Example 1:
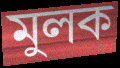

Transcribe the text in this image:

মুলক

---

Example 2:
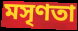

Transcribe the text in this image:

মসৃণতা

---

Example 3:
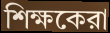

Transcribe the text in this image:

শিক্ষকেরা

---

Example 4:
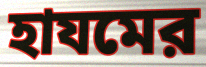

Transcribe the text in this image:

হাযমের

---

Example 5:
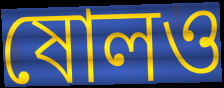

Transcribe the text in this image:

ষোলও